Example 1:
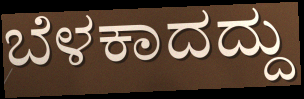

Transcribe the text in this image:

ಬೆಳಕಾದದ್ದು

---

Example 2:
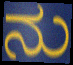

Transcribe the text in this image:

ನು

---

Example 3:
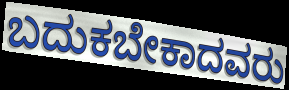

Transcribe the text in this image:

ಬದುಕಬೇಕಾದವರು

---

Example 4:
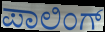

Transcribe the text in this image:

ಪಾಲಿಂಗ್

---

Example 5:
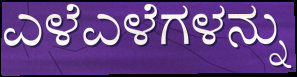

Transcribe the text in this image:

ಎಳೆಎಳೆಗಳನ್ನು